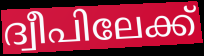
ദ്വീപിലേക്ക്